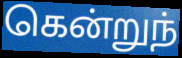
கென்றுந்